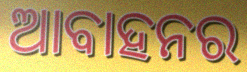
ଆବାହନର